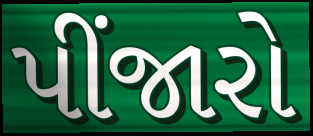
પીંજારો